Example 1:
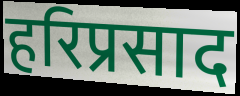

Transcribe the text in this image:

हरिप्रसाद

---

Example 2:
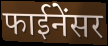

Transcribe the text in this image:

फाईनेंसर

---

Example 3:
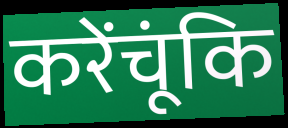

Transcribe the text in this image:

करेंचूंकि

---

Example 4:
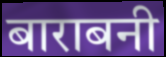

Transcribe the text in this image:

बाराबनी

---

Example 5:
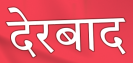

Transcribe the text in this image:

देरबाद